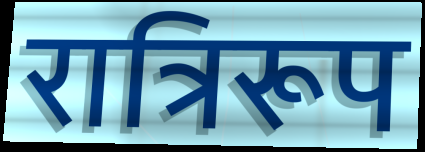
रात्रिरूप